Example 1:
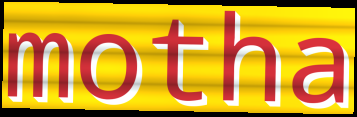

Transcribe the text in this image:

motha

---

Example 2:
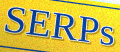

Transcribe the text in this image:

SERPs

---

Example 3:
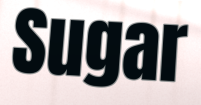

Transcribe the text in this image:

Sugar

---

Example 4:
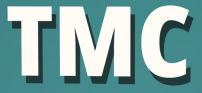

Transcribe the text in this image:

TMC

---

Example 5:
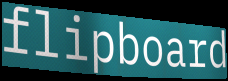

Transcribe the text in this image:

flipboard